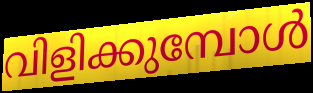
വിളിക്കുമ്പോൾ